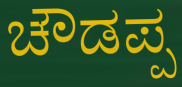
ಚೌಡಪ್ಪ